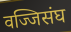
वज्जिसंघ